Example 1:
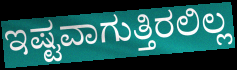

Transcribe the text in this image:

ಇಷ್ಟವಾಗುತ್ತಿರಲಿಲ್ಲ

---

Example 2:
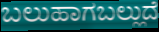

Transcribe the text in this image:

ಬಲುಹಾಗಬಲ್ಲುದೆ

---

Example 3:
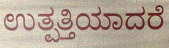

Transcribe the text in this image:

ಉತ್ಪತ್ತಿಯಾದರೆ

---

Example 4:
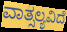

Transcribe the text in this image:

ವಾತ್ಸಲ್ಯವಿದೆ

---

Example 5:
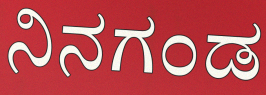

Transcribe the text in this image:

ನಿನಗಂಡ